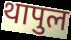
थापुल